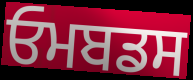
ਓਮਬਡਸ